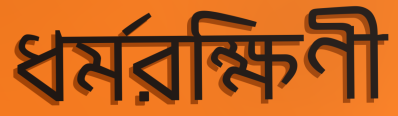
ধর্মরক্ষিণী